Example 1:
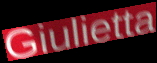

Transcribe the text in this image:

Giulietta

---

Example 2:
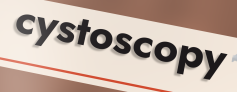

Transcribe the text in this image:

cystoscopy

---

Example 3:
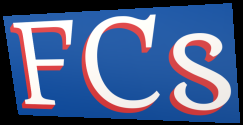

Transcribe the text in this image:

FCs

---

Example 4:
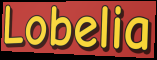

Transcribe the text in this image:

Lobelia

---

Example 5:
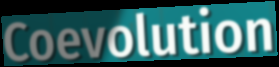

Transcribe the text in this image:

Coevolution